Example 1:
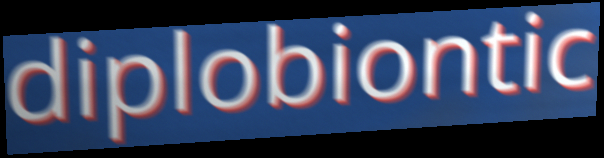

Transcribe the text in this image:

diplobiontic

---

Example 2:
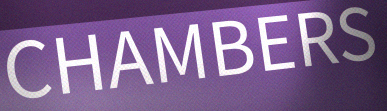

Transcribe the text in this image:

CHAMBERS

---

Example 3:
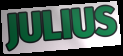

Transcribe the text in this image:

JULIUS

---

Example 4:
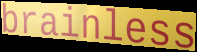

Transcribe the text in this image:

brainless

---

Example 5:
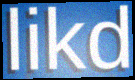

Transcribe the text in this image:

likd